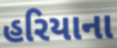
હરિયાના